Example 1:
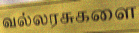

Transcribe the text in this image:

வல்லரசுகளை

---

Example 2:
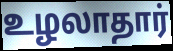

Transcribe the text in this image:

உழலாதார்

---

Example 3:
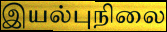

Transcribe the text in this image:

இயல்புநிலை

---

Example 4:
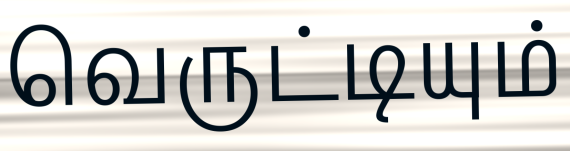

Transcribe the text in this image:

வெருட்டியும்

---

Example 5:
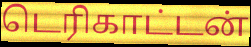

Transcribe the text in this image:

டெரிகாட்டன்